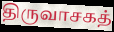
திருவாசகத்